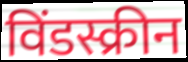
विंडस्क्रीन